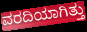
ವರದಿಯಾಗಿತ್ತು